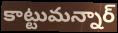
కాట్టుమన్నార్